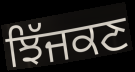
ਝਿੱਜਕਣ